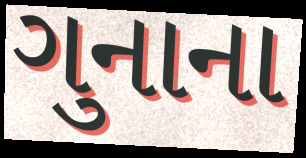
ગુનાના